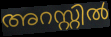
അറസ്റ്റിൽ